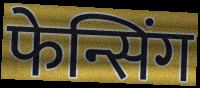
फेन्सिंग